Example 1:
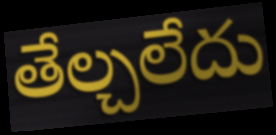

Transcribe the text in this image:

తేల్చలేదు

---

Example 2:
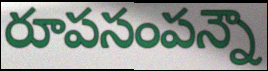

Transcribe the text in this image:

రూపసంపన్నౌ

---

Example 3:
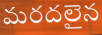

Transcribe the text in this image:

మరదలైన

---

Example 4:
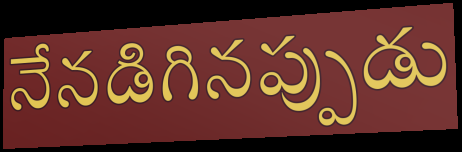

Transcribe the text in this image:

నేనడిగినప్పుడు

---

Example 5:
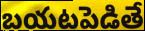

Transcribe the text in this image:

బయటపెడితే